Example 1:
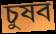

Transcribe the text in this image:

চুষব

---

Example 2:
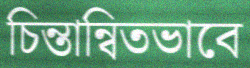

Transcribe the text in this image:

চিন্তান্বিতভাবে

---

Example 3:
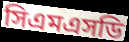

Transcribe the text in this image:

সিএমএসডি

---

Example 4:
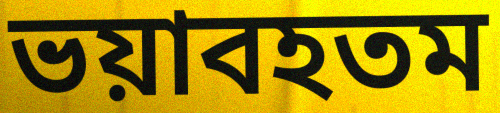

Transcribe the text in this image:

ভয়াবহতম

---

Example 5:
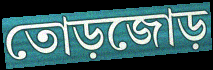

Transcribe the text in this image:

তোড়জোড়